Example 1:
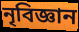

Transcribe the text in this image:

নৃবিজ্ঞান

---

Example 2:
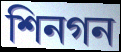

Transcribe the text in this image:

শিনগন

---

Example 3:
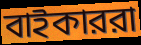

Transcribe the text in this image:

বাইকাররা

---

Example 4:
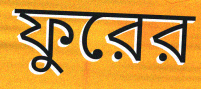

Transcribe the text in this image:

ফুরের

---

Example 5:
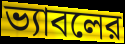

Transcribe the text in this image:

ভ্যাবলের